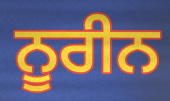
ਨੂਰੀਨ